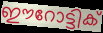
ഈറോട്ടിക്